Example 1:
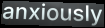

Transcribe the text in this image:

anxiously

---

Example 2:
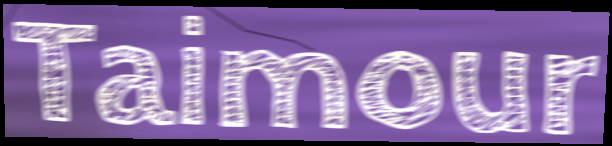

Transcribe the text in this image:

Taimour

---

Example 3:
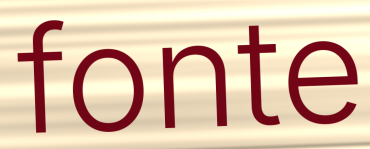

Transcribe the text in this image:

fonte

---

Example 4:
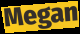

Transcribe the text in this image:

Megan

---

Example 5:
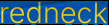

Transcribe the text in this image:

redneck